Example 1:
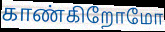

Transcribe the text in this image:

காண்கிறோமோ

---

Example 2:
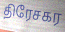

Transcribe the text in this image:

திரேசகர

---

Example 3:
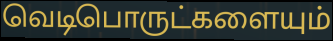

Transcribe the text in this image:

வெடிபொருட்களையும்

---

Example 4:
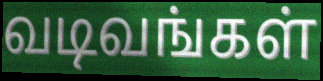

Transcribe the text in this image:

வடிவங்கள்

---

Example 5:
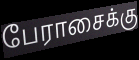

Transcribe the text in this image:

பேராசைக்கு